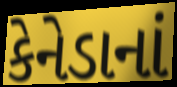
કેનેડાનાં